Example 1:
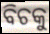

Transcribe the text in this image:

ବିଚକୁ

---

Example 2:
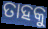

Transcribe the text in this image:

ତାହକୁ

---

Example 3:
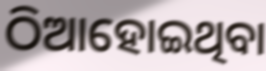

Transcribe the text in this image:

ଠିଆହୋଇଥିବା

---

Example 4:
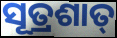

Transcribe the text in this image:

ସୂତ୍ରଶାତ୍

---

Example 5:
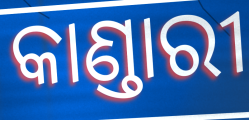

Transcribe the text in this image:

କାଣ୍ଡାରୀ